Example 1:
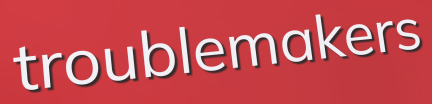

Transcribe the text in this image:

troublemakers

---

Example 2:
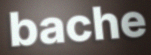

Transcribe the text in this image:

bache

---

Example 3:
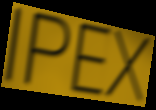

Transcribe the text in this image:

IPEX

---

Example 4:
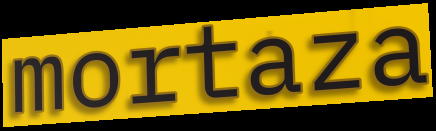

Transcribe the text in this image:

mortaza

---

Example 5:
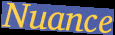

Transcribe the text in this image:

Nuance